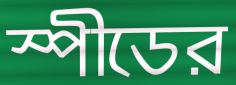
স্পীডের